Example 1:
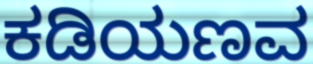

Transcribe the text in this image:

ಕಡಿಯಣವ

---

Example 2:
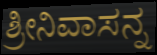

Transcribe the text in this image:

ಶ್ರೀನಿವಾಸನ್ನ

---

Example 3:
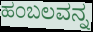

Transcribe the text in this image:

ಹಂಬಲವನ್ನ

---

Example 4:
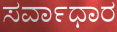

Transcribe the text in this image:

ಸರ್ವಾಧಾರ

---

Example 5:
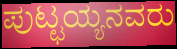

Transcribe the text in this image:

ಪುಟ್ಟಯ್ಯನವರು